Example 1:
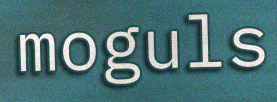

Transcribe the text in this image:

moguls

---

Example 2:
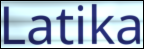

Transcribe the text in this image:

Latika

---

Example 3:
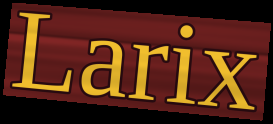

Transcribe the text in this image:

Larix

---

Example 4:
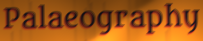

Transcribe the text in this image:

Palaeography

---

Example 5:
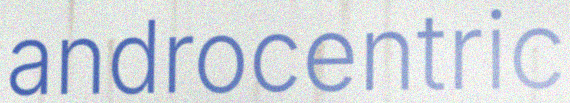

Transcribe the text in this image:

androcentric